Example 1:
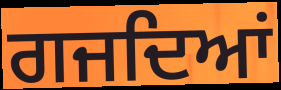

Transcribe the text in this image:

ਗਜਦਿਆਂ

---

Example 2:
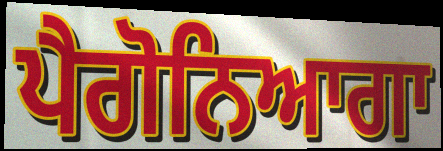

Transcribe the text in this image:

ਪੈਗੋਨਿਆਗਾ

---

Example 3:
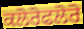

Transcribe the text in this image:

ਕਲੋਰੋਫਲੋਰੋ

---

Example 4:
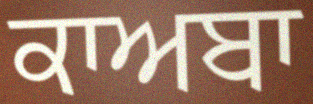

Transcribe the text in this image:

ਕਾਅਬਾ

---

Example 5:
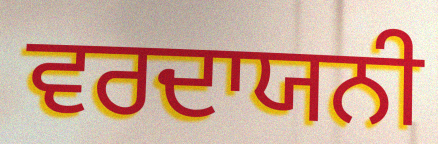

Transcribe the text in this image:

ਵਰਦਾਯਨੀ